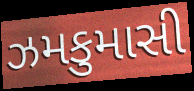
ઝમકુમાસી